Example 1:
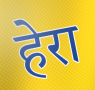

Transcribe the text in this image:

हेरा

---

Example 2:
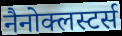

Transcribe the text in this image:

नैनोक्लस्टर्स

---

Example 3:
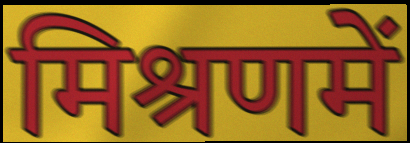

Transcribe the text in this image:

मिश्रणमें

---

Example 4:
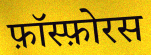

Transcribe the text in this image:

फ़ॉस्फ़ोरस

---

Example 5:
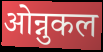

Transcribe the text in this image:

ओन्नुकल